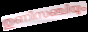
തുണിസഞ്ചിയും